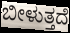
ಬೀಳುತ್ತದೆ